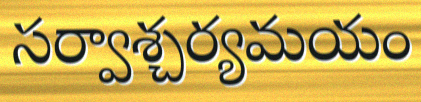
సర్వాశ్చర్యమయం